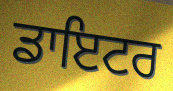
ਡਾਇਟਰ